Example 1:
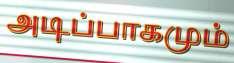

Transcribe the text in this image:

அடிப்பாகமும்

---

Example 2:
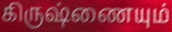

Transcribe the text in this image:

கிருஷ்ணையும்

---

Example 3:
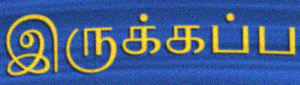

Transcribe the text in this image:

இருக்கப்ப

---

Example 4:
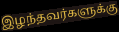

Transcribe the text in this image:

இழந்தவர்களுக்கு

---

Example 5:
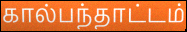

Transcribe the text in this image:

கால்பந்தாட்டம்